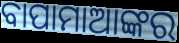
ବାପାମାଆଙ୍କର